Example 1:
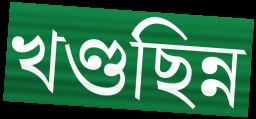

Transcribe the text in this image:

খণ্ডছিন্ন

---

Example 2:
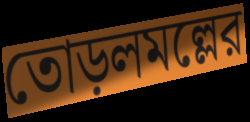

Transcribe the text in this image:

তোড়লমল্লের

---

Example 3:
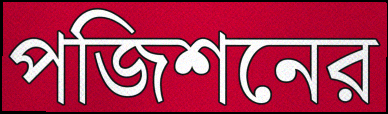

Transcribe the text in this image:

পজিশনের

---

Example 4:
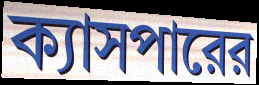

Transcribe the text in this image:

ক্যাসপারের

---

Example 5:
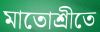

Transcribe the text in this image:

মাতোশ্রীতে